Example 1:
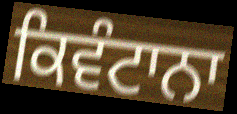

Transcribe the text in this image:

ਕਿਵੰਟਾਨਾ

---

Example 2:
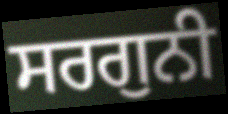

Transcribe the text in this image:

ਸਰਗੁਨੀ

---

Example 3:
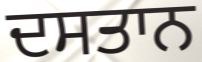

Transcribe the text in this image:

ਦਸਤਾਨ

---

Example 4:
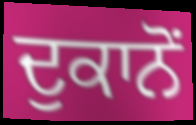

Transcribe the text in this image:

ਦੁਕਾਨੋਂ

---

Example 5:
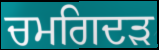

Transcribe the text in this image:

ਚਮਗਿਦੜ